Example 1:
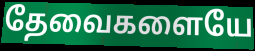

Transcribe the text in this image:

தேவைகளையே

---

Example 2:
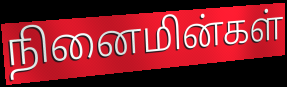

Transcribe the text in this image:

நினைமின்கள்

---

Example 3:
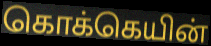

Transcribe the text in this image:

கொக்கெயின்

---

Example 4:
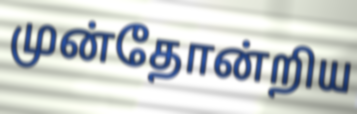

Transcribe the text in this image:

முன்தோன்றிய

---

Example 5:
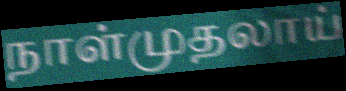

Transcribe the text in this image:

நாள்முதலாய்